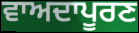
ਵਾਅਦਾਪੂਰਣ